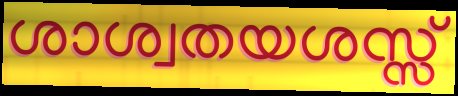
ശാശ്വതയശസ്സ്